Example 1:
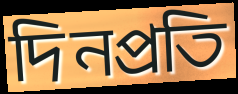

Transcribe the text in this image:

দিনপ্রতি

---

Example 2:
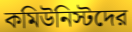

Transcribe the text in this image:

কমিউনিস্টদের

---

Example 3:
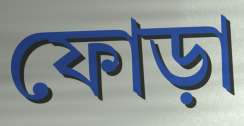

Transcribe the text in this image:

ফোড়া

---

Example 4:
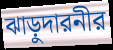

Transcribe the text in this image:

ঝাড়ুদারনীর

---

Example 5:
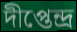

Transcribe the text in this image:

দীপ্তেন্দ্র